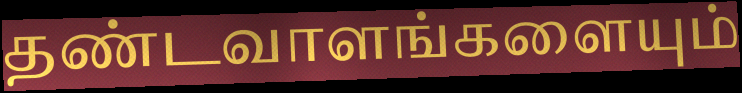
தண்டவாளங்களையும்